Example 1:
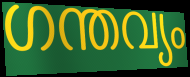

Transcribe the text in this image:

ഗന്തവ്യം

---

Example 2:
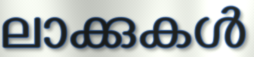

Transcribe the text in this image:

ലാക്കുകൾ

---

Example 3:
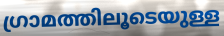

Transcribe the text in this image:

ഗ്രാമത്തിലൂടെയുള്ള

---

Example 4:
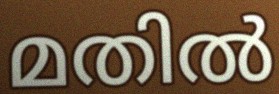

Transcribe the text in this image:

മതിൽ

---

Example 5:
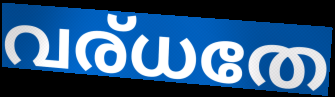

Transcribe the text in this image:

വര്ധതേ